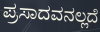
ಪ್ರಸಾದವನಲ್ಲದೆ